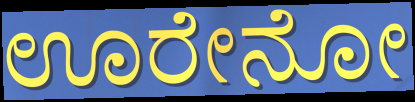
ಊರೇನೋ